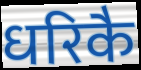
धरिकै